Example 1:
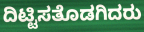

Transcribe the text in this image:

ದಿಟ್ಟಿಸತೊಡಗಿದರು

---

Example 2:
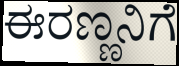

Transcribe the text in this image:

ಈರಣ್ಣನಿಗೆ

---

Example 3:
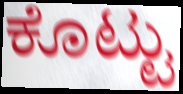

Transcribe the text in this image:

ಕೊಟ್ಟು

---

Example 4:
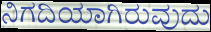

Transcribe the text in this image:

ನಿಗದಿಯಾಗಿರುವುದು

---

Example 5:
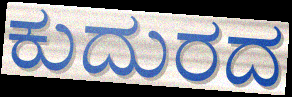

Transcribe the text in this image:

ಕುದುರದ